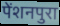
पेंशनपुरा